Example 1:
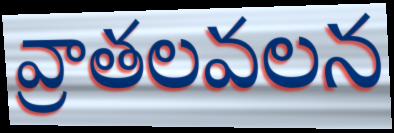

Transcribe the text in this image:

వ్రాతలవలన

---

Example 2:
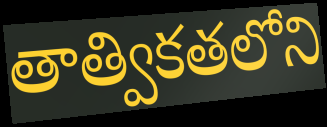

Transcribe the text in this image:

తాత్వికతలోని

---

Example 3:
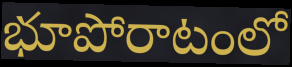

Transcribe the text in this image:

భూపోరాటంలో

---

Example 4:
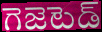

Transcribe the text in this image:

గెజెటెడ్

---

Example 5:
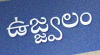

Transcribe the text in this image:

ఉజ్జ్వలం